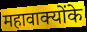
महावाक्योंके